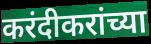
करंदीकरांच्या